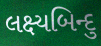
લક્ષ્યબિન્દુ